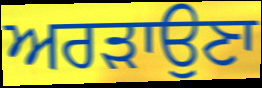
ਅਰੜਾਉਣਾ